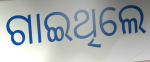
ଗାଇଥିଲେ